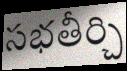
సభతీర్చి